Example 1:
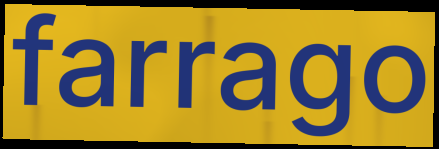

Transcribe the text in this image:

farrago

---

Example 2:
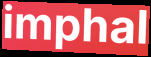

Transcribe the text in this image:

imphal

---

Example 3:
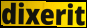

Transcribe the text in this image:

dixerit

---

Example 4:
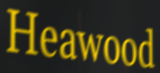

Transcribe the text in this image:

Heawood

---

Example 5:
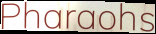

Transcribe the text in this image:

Pharaohs